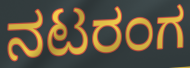
ನಟರಂಗ